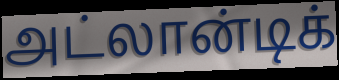
அட்லான்டிக்